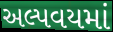
અલ્પવયમાં